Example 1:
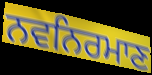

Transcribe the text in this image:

ਨਵਨਿਰਮਾਣ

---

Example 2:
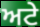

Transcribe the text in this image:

ਅਟੇ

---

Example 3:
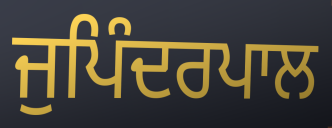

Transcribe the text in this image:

ਜੁਪਿੰਦਰਪਾਲ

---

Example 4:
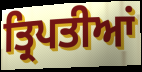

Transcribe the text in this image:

ਤ੍ਰਿਪਤੀਆਂ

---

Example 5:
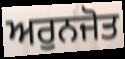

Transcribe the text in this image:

ਅਰੁਨਜੋਤ